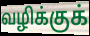
வழிக்குக்